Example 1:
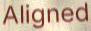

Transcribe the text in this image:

Aligned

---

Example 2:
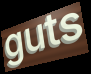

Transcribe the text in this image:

guts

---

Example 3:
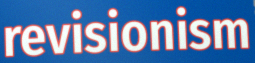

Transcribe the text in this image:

revisionism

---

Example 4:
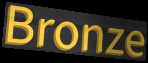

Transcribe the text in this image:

Bronze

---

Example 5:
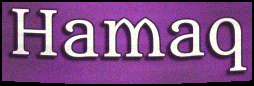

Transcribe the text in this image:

Hamaq